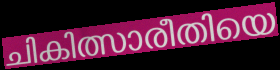
ചികിത്സാരീതിയെ